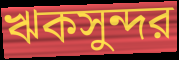
ঋকসুন্দর